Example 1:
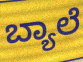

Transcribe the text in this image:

ಬ್ಯಾಲೆ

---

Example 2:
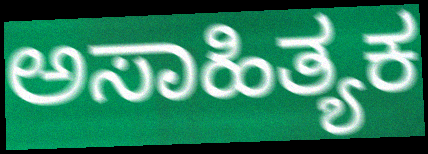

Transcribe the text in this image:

ಅಸಾಹಿತ್ಯಕ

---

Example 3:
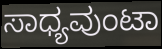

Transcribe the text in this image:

ಸಾಧ್ಯವುಂಟಾ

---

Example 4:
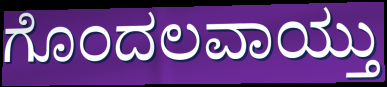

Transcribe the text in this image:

ಗೊಂದಲವಾಯ್ತು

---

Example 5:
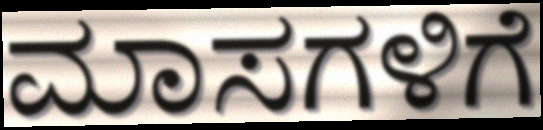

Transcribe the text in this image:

ಮಾಸಗಳಿಗೆ